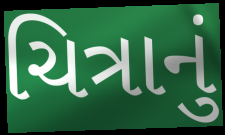
ચિત્રાનું